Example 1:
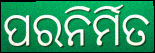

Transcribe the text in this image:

ପରନିର୍ମିତ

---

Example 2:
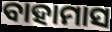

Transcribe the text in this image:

ବାହାମାସ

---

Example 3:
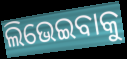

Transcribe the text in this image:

ଲିଭେଇବାକୁ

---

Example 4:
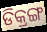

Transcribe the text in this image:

ଡିକ୍ରଙ୍ଗ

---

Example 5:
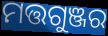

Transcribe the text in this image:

ମତ୍ତଗୁଞ୍ଜର